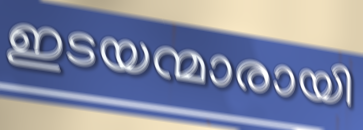
ഇടയന്മാരായി